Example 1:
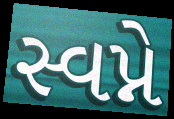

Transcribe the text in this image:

સ્વપ્ને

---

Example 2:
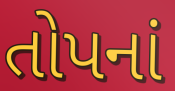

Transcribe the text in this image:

તોપનાં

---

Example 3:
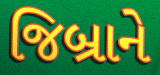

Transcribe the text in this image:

જિબ્રાને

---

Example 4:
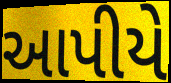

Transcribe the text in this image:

આપીયે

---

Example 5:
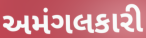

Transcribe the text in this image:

અમંગલકારી